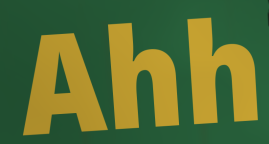
Ahh